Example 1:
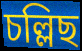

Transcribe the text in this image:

চল্লিছ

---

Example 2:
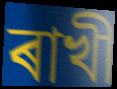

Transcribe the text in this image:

ৰাখী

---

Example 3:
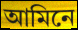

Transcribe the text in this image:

আমিনে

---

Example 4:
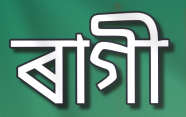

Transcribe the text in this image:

ৰাগী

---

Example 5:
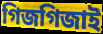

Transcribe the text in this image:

গিজগিজাই